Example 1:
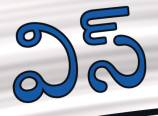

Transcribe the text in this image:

విస్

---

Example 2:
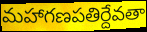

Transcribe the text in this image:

మహాగణపతిర్దేవతా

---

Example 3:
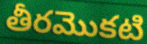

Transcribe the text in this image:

తీరమొకటి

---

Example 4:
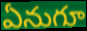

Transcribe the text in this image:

ఏనుగూ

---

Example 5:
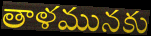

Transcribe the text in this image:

తాళమునకు